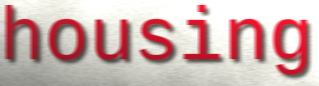
housing